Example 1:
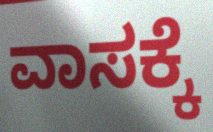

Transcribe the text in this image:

ವಾಸಕ್ಕೆ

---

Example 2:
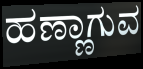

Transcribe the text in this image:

ಹಣ್ಣಾಗುವ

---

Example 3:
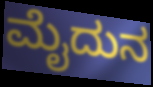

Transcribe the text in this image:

ಮೈದುನ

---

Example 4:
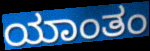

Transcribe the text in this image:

ಯಾಂತಂ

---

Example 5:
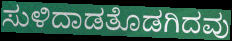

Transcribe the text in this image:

ಸುಳಿದಾಡತೊಡಗಿದವು